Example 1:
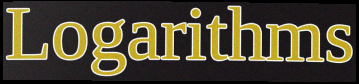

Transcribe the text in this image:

Logarithms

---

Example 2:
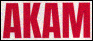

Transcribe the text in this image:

AKAM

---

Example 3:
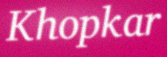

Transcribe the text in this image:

Khopkar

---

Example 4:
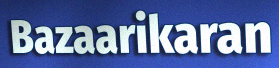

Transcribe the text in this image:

Bazaarikaran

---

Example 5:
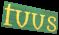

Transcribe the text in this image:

tuus